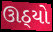
ઊઠ્યો